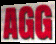
AGG